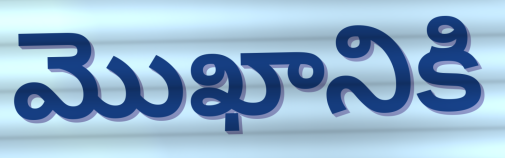
మొఖానికి